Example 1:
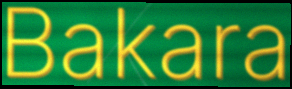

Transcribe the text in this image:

Bakara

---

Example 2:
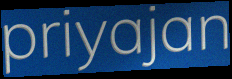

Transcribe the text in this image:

priyajan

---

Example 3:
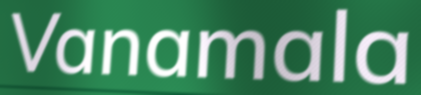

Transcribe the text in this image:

Vanamala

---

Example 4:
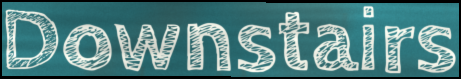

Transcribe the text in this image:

Downstairs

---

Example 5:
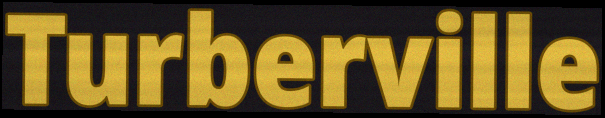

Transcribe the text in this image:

Turberville